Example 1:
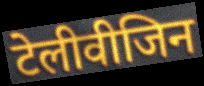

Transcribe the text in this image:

टेलीवीजिन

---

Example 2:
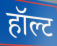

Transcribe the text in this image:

हॉल्ट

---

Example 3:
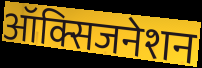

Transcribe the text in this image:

ऑक्सिजनेशन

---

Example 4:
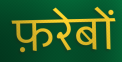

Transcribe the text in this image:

फ़रेबों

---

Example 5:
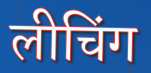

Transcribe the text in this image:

लीचिंग